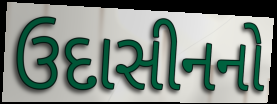
ઉદાસીનનો